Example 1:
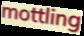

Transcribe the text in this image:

mottling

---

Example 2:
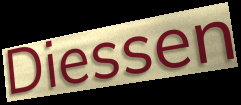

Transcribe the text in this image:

Diessen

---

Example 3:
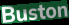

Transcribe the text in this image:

Buston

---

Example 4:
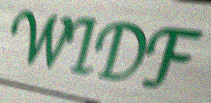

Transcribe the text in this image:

WIDF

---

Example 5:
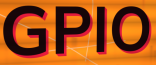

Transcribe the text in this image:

GPIO